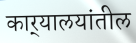
कार्यालयांतील